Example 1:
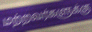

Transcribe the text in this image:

மற்றவர்களுக்கு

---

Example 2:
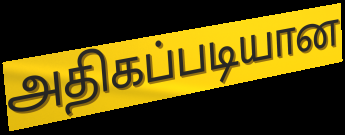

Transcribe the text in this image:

அதிகப்படியான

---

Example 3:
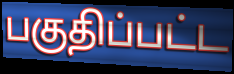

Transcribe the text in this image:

பகுதிப்பட்ட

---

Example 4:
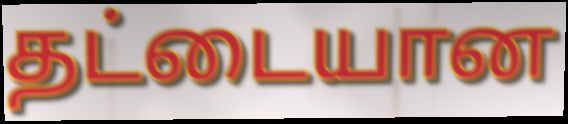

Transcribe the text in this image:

தட்டையான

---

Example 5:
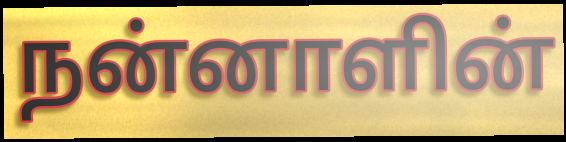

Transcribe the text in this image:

நன்னாளின்